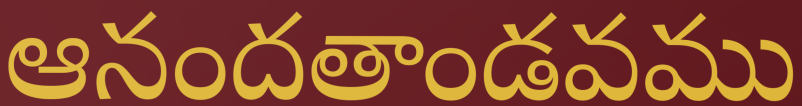
ఆనందతాండవము